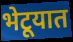
भेटूयात